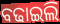
ବଢାଇଲି